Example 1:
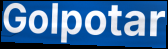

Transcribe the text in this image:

Golpotar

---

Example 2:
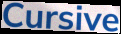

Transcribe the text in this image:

Cursive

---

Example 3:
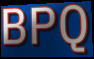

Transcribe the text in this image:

BPQ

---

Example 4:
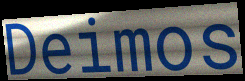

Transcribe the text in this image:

Deimos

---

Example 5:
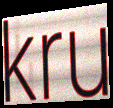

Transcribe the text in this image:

kru